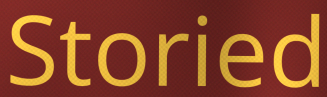
Storied